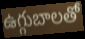
ఉగ్గుబాలతో